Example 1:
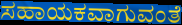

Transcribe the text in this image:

ಸಹಾಯಕವಾಗುವಂತೆ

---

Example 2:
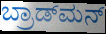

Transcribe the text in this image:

ಬ್ರಾಡ್‌ಮನ್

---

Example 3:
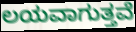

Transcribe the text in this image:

ಲಯವಾಗುತ್ತವೆ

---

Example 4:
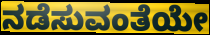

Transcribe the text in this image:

ನಡೆಸುವಂತೆಯೇ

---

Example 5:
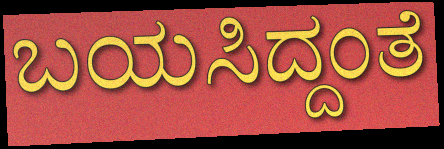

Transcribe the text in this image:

ಬಯಸಿದ್ದಂತೆ